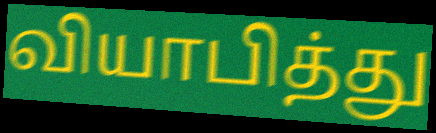
வியாபித்து